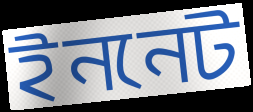
ইননেট